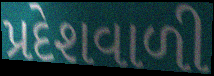
પ્રદેશવાળી